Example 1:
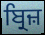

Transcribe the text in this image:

ਬ੍ਰਿਜ਼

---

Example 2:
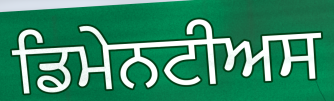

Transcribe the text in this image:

ਡਿਮੇਨਟੀਅਸ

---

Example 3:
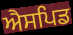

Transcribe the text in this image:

ਐਸਪਿਡ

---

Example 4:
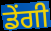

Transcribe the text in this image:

ਡੇਂਗੀ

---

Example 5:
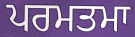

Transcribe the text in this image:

ਪਰਮਤਮਾ